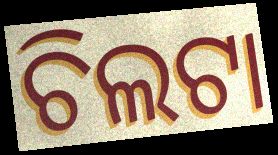
ଚିଲଟା